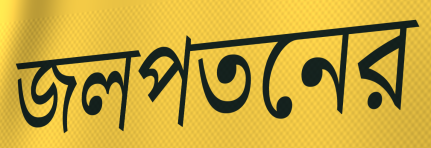
জলপতনের